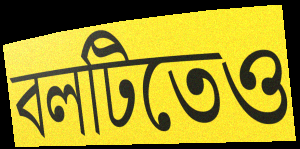
বলটিতেও